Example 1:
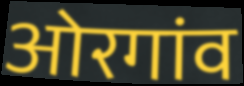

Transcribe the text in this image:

ओरगांव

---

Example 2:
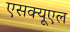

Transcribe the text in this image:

एसक्यूएल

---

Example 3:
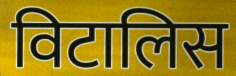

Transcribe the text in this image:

विटालिस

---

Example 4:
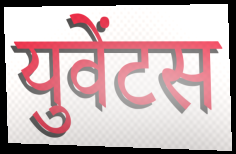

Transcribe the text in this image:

युवेंटस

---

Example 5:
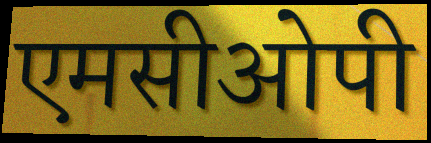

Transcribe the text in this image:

एमसीओपी